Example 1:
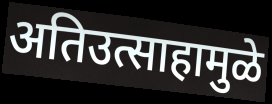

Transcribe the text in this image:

अतिउत्साहामुळे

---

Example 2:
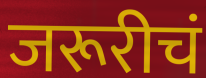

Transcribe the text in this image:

जरूरीचं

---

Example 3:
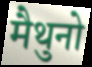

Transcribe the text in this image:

मैथुनो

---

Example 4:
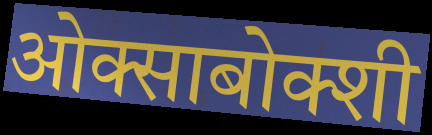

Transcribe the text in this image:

ओक्साबोक्शी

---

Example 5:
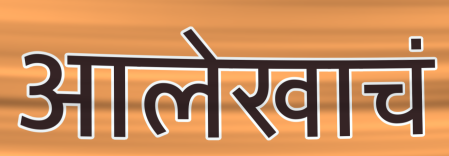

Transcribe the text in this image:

आलेखाचं